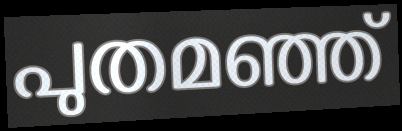
പുതമഞ്ഞ്